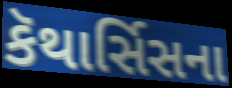
કૅથાર્સિસના